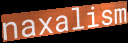
naxalism